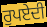
ਰੁਪਏਦੀ